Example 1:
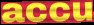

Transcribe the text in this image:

accu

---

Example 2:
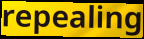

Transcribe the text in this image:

repealing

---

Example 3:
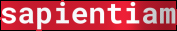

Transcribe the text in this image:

sapientiam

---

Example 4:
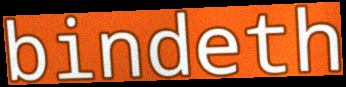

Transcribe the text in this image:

bindeth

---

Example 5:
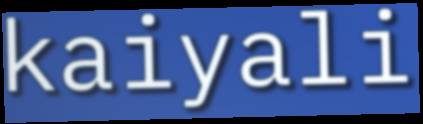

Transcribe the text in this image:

kaiyali